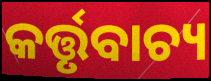
କର୍ତ୍ତୃବାଚ୍ୟ